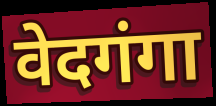
वेदगंगा